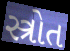
સ્ત્રોત